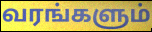
வரங்களும்